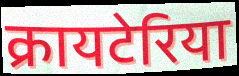
क्रायटेरिया